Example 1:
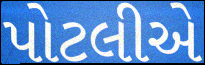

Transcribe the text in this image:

પોટલીએ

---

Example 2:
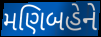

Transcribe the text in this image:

મણિબહેને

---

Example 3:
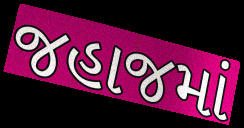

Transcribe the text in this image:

જહાજમાં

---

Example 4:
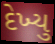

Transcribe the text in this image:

દેખ્યુ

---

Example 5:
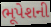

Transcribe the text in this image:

ભૂપેશની